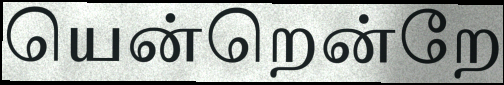
யென்றென்றே